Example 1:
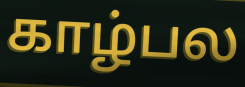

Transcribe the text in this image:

காழ்பல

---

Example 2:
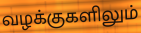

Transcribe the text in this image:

வழக்குகளிலும்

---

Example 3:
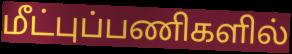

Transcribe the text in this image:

மீட்புப்பணிகளில்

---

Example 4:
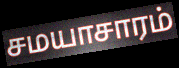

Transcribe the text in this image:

சமயாசாரம்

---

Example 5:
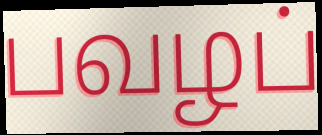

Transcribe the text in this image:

பவழப்